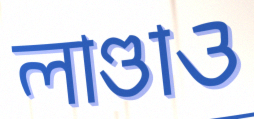
লাণ্ডাও